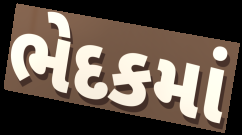
ભેદકમાં